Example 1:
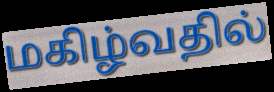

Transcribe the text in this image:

மகிழ்வதில்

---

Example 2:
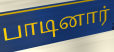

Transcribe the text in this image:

பாடினார்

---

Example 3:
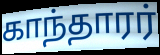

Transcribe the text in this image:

காந்தாரர்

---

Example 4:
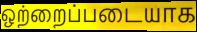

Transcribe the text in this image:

ஒற்றைப்படையாக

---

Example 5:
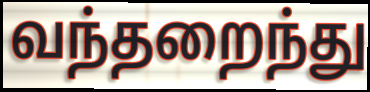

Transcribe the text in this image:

வந்தறைந்து